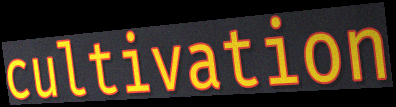
cultivation